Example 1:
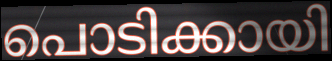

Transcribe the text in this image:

പൊടിക്കായി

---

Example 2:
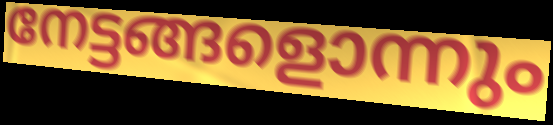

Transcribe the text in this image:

നേട്ടങ്ങളൊന്നും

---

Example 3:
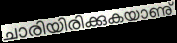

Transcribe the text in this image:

ചാരിയിരിക്കുകയാണു്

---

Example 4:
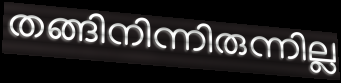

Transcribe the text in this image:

തങ്ങിനിന്നിരുന്നില്ല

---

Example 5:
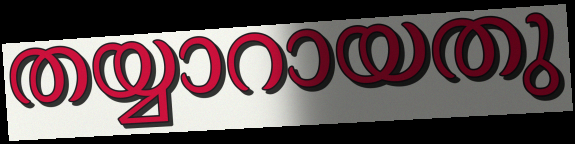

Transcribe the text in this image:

തയ്യാറായതു